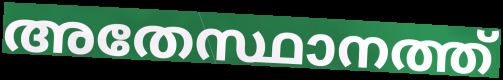
അതേസ്ഥാനത്ത്